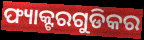
ଫ୍ୟାକ୍ଟରଗୁଡିକର